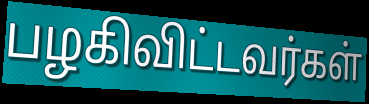
பழகிவிட்டவர்கள்